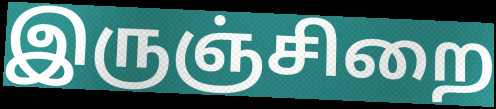
இருஞ்சிறை